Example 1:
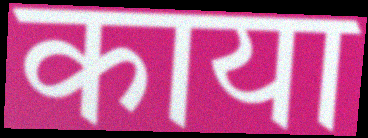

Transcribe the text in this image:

काया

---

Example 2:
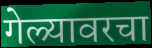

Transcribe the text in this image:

गेल्यावरचा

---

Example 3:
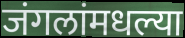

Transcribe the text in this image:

जंगलांमधल्या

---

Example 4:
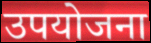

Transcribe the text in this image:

उपयोजना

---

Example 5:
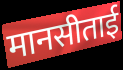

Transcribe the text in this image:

मानसीताई